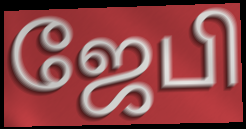
ஜேபி